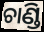
ଚାଣ୍ଡି